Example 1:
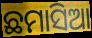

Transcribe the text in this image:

ଛମାସିଆ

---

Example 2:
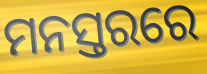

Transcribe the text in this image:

ମନସ୍ତରରେ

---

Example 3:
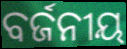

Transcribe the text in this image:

ବର୍ଜନୀୟ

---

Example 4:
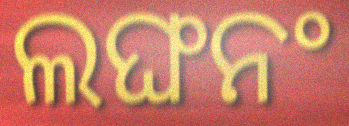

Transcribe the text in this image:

ଲଙ୍ଘନଂ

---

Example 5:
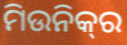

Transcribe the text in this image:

ମିଉନିକ୍‌ର